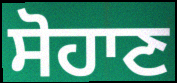
ਸੋਹਾਣ